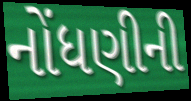
નોંધણીની